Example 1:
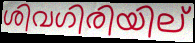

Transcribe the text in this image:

ശിവഗിരിയില്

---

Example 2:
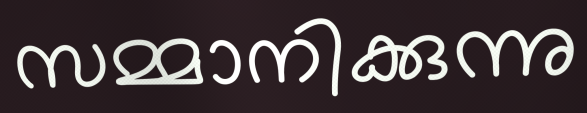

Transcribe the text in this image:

സമ്മാനിക്കുന്നു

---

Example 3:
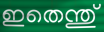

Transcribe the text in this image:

ഇതെന്തു്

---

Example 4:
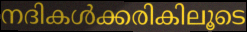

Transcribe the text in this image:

നദികൾക്കരികിലൂടെ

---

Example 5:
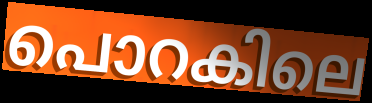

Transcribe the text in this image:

പൊറകിലെ